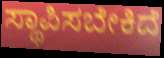
ಸ್ಥಾಪಿಸಬೇಕಿದೆ